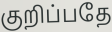
குறிப்பதே